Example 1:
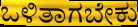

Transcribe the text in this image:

ಒಳಿತಾಗಬೇಕು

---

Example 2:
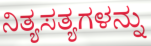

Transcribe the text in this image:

ನಿತ್ಯಸತ್ಯಗಳನ್ನು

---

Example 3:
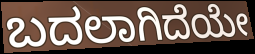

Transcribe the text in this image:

ಬದಲಾಗಿದೆಯೇ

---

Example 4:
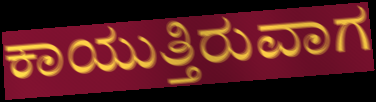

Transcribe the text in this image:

ಕಾಯುತ್ತಿರುವಾಗ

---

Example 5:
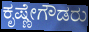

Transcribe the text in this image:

ಕೃಷ್ಣೇಗೌಡರು